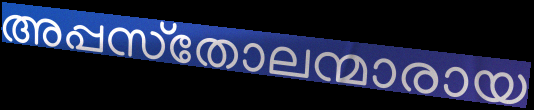
അപ്പസ്‌തോലന്മാരായ